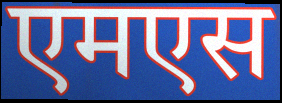
एमएस